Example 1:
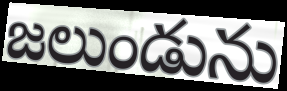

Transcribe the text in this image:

జలుండును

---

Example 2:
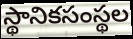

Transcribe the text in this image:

స్థానికసంస్థల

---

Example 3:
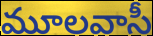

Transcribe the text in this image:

మూలవాసీ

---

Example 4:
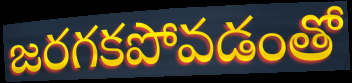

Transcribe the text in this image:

జరగకపోవడంతో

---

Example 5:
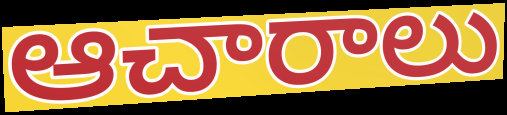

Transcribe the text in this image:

ఆచారాలు